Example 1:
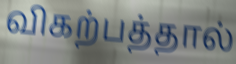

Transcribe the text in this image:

விகற்பத்தால்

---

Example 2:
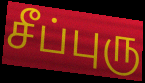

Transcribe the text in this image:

சீப்புரு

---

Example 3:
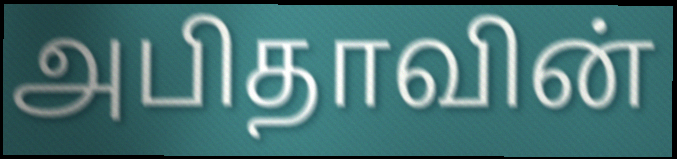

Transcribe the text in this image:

அபிதாவின்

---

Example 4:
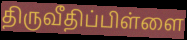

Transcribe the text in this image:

திருவீதிப்பிள்ளை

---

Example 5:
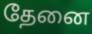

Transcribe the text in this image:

தேனை